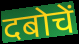
दबोचें